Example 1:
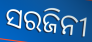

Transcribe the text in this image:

ସରଜିନୀ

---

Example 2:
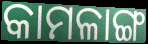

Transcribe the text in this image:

କାମଳାଙ୍ଗ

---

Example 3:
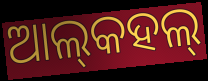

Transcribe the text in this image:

ଆଲ୍‌କହଲ୍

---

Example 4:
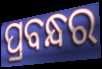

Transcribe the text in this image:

ପ୍ରବନ୍ଧର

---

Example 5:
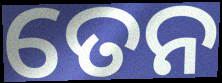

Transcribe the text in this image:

ତେନ